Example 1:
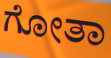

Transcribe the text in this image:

ಗೋತಾ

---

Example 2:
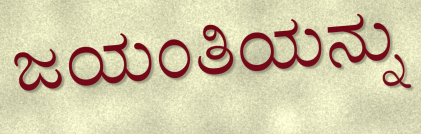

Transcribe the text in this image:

ಜಯಂತಿಯನ್ನು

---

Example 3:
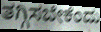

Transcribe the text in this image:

ತಗ್ಗಿಸಬೇಕೆಂದು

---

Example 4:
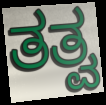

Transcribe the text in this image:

ತತ್ವ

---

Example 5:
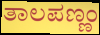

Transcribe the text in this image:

ತಾಲಪಣ್ಣಂ